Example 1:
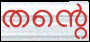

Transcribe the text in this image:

തന്റെ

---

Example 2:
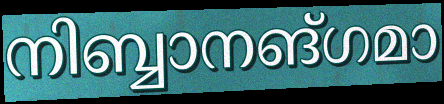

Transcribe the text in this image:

നിബ്ബാനങ്ഗമാ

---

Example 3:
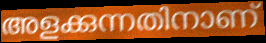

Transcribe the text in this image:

അളക്കുന്നതിനാണ്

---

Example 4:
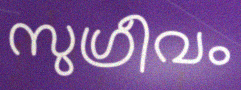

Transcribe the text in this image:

സുഗ്രീവം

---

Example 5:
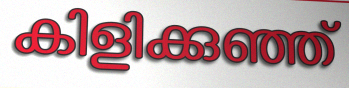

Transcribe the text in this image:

കിളിക്കുഞ്ഞ്